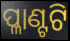
ପ୍ଳାଣ୍ଟଟି